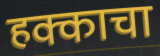
हक्काचा